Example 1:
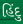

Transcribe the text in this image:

હિંદુ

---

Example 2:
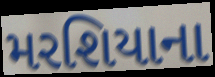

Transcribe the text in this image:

મરશિયાના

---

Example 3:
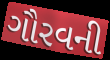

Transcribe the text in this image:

ગૌરવની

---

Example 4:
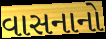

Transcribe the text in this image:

વાસનાનો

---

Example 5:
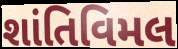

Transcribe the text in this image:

શાંતિવિમલ